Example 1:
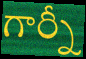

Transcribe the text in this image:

గార్నీ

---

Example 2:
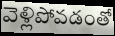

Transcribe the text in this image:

వెళ్లిపోవడంతో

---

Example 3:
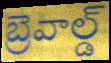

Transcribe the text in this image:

బ్రెవాల్డ్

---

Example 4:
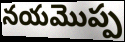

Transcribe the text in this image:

నయమొప్ప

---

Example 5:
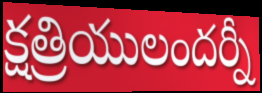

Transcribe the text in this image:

క్షత్రియులందర్నీ